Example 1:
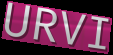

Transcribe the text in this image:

URVI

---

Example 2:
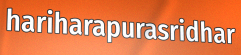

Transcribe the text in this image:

hariharapurasridhar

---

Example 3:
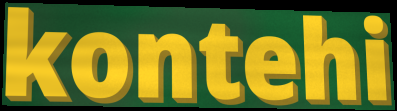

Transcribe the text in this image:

kontehi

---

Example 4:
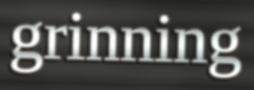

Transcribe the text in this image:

grinning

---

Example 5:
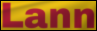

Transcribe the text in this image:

Lann